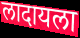
लादायला